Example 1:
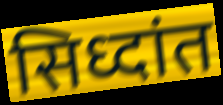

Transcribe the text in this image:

सिध्दांत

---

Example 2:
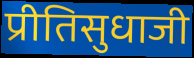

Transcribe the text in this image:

प्रीतिसुधाजी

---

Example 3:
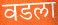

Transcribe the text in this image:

वडला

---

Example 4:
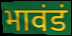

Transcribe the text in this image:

भावंडं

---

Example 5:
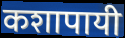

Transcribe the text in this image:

कशापायी